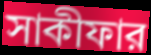
সাকীফার